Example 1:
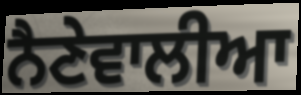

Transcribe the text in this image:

ਨੈਣੇਵਾਲੀਆ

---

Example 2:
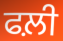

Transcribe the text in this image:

ਫਲ਼ੀ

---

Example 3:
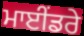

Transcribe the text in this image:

ਮਾਈਂਡਰੇ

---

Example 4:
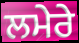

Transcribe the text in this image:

ਲਮੇਰੇ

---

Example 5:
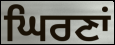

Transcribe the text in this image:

ਘਿਰਣਾਂ